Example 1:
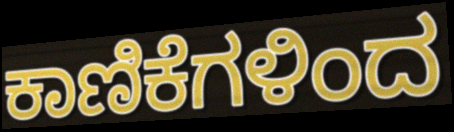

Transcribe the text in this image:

ಕಾಣಿಕೆಗಳಿಂದ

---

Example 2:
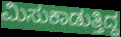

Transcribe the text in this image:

ಮಿಸುಕಾಡುತ್ತಿದ್ದ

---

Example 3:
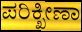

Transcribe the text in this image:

ಪರಿಕ್ಖೀಣಾ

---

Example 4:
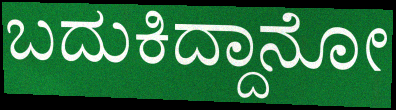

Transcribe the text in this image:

ಬದುಕಿದ್ದಾನೋ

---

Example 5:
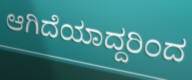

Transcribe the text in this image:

ಆಗಿದೆಯಾದ್ದರಿಂದ